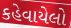
કહેવાયેલો